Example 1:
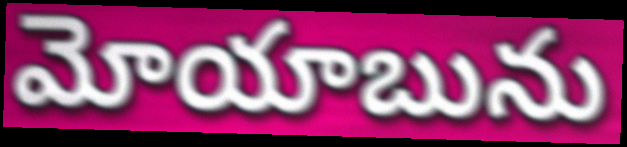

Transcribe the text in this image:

మోయాబును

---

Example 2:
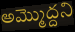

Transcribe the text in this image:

అమ్మొద్దని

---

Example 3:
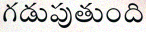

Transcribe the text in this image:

గడుపుతుంది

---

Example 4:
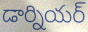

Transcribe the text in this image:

డార్నియర్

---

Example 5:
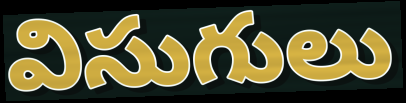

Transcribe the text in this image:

విసుగులు